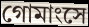
গোমাংসে